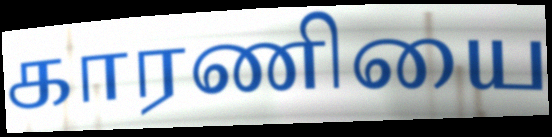
காரணியை